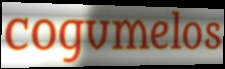
cogumelos